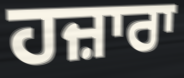
ਹਜ਼ਾਰਾ